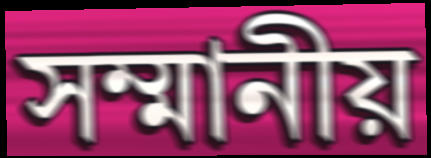
সম্মানীয়